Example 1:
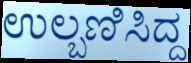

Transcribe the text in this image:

ಉಲ್ಬಣಿಸಿದ್ದ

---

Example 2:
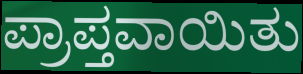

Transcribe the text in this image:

ಪ್ರಾಪ್ತವಾಯಿತು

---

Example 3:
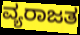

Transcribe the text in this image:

ವ್ಯರಾಜತ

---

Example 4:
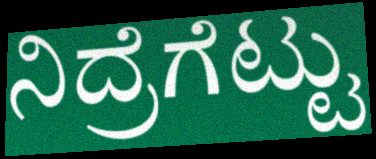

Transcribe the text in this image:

ನಿದ್ರೆಗೆಟ್ಟು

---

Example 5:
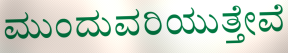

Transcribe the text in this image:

ಮುಂದುವರಿಯುತ್ತೇವೆ